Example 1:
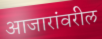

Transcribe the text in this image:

आजारांवरील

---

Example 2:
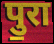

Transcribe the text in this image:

पु॒रा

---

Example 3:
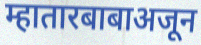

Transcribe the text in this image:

म्हातारबाबाअजून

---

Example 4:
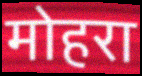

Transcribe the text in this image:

मोहरा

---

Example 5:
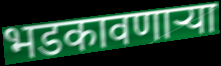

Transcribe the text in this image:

भडकावणाऱ्या